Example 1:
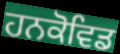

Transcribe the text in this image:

ਹਨਕੋਵਿਡ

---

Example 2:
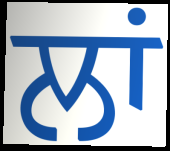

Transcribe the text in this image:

ਲਾਂ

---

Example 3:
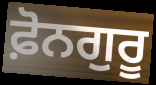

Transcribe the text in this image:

ਫ਼ੋਨਗੁਰੂ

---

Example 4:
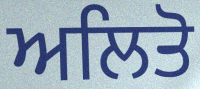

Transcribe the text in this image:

ਅਲਿਤੋ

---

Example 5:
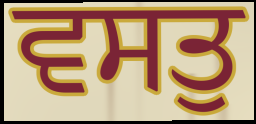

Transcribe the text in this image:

ਵਸਤੁ